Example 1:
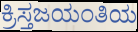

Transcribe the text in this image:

ಕ್ರಿಸ್ತಜಯಂತಿಯ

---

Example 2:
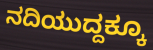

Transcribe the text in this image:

ನದಿಯುದ್ದಕ್ಕೂ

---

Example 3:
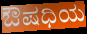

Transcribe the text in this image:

ಔಷಧಿಯ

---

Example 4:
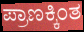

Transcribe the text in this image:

ಪ್ರಾಣಕ್ಕಿಂತ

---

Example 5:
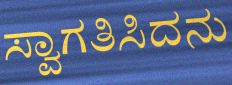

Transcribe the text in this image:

ಸ್ವಾಗತಿಸಿದನು